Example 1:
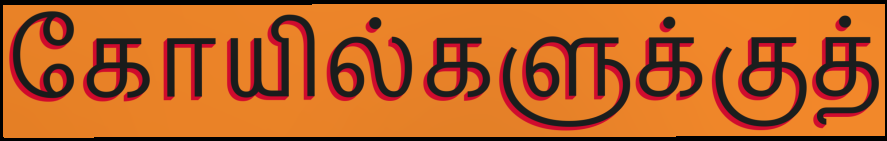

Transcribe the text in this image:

கோயில்களுக்குத்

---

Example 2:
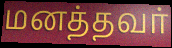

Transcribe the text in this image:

மனத்தவர்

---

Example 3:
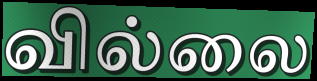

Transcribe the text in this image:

வில்லை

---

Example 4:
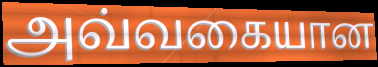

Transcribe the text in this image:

அவ்வகையான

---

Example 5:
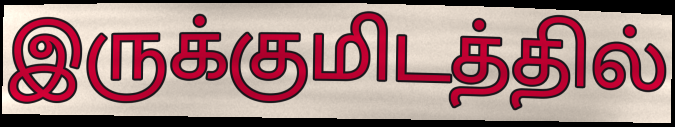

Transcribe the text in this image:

இருக்குமிடத்தில்